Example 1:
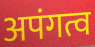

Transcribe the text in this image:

अपंगत्व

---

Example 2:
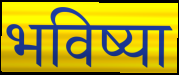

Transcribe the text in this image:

भविष्या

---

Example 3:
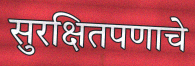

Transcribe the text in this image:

सुरक्षितपणाचे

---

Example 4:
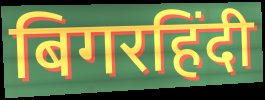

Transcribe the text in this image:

बिगरहिंदी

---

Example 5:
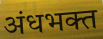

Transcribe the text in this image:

अंधभक्त